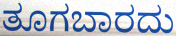
ತೂಗಬಾರದು